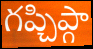
గప్చిప్గా